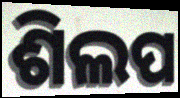
ଶିଲପ